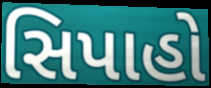
સિપાહો